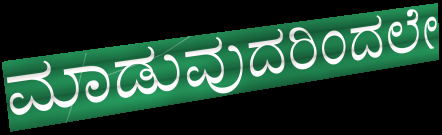
ಮಾಡುವುದರಿಂದಲೇ